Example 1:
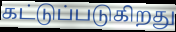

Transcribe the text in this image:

கட்டுப்படுகிறது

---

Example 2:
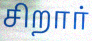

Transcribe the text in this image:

சிறார்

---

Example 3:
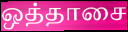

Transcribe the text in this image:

ஒத்தாசை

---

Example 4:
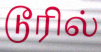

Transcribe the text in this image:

டூரில்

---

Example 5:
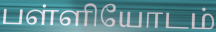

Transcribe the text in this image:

பள்ளியோடம்